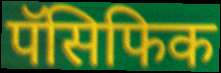
पॅसिफिक